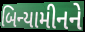
બિન્યામીનને